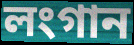
লংগান